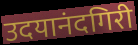
उदयानंदगिरी